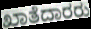
ಖಾತೆದಾರರು